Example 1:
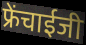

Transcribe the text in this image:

फ्रेंचाईजी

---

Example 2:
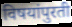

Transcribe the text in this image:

विषयांपुरती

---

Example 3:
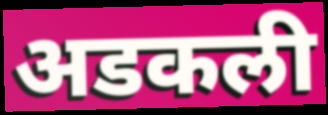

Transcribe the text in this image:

अडकली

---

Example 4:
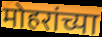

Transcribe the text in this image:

मोहरांच्या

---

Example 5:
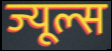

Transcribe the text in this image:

ज्यूल्स